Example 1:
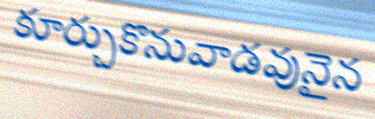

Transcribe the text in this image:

కూర్చుకొనువాడవునైన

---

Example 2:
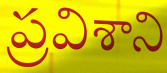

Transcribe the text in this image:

ప్రవిశాని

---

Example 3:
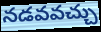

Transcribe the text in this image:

నడవవచ్చు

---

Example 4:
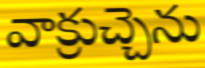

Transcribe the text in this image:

వాక్రుచ్చెను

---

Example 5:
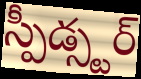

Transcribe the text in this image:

స్పీడ్స్టర్